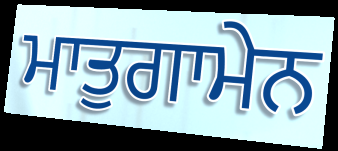
ਮਾਤੁਗਾਮੇਨ